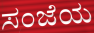
ಸಂಜೆಯ